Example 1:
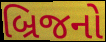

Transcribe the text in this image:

બ્રિજનો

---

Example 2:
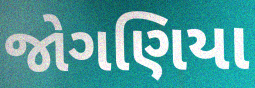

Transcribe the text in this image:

જોગણિયા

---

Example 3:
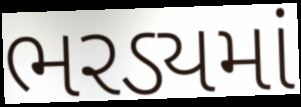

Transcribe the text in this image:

ભરડ્યમાં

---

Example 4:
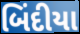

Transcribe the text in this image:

બિંદીયા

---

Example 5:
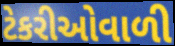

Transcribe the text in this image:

ટેકરીઓવાળી